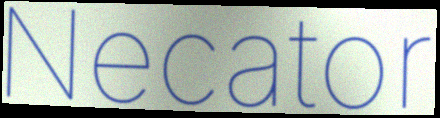
Necator